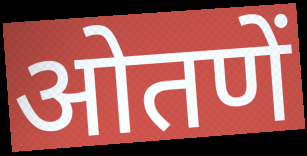
ओतणें